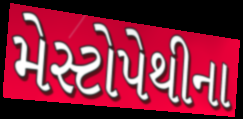
મેસ્ટોપેથીના